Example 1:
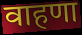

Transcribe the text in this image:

वाहणा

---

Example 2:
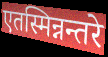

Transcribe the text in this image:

एतस्मिन्नन्तरे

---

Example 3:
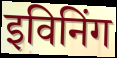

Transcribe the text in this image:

इविनिंग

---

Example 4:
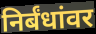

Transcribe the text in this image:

निर्बंधांवर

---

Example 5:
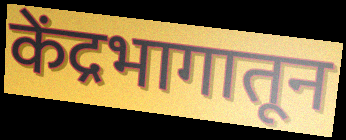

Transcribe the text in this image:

केंद्रभागातून